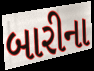
બારીના